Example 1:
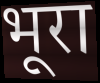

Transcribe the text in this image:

भूरा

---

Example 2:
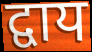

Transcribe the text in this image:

द्वाय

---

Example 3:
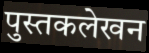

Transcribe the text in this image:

पुस्तकलेखन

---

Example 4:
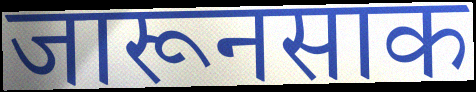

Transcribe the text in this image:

जारूनसाक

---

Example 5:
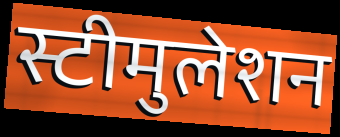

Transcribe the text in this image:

स्टीमुलेशन